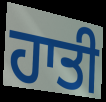
ਹਾਤੀ